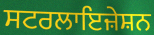
ਸਟਰਲਾਇਜ਼ੇਸ਼ਨ